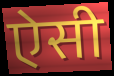
ऐसी